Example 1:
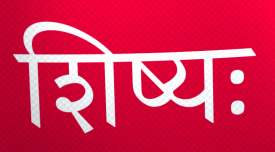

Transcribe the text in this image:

शिष्यः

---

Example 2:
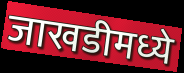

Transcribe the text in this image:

जाखडीमध्ये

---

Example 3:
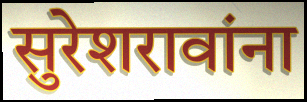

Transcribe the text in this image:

सुरेशरावांना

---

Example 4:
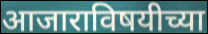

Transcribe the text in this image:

आजाराविषयीच्या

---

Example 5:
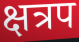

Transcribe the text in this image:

क्षत्रप